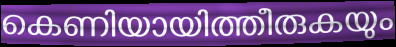
കെണിയായിത്തീരുകയും